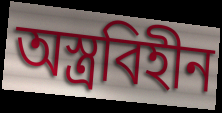
অস্ত্রবিহীন